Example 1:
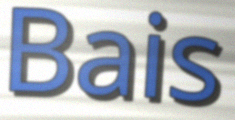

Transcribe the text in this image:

Bais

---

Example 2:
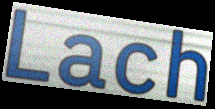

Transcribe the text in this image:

Lach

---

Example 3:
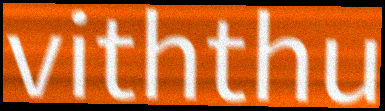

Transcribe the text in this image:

viththu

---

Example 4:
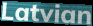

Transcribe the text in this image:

Latvian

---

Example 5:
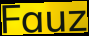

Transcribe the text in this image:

Fauz